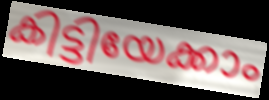
കിട്ടിയേക്കാം